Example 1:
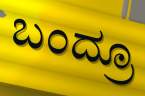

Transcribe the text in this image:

ಬಂದ್ರೂ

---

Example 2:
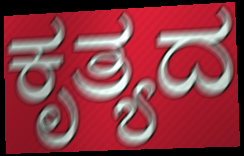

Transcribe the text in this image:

ಕೃತ್ಯದ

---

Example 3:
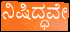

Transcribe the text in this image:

ನಿಷಿದ್ಧವೇ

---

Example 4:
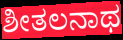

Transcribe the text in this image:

ಶೀತಲನಾಥ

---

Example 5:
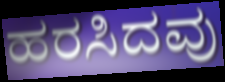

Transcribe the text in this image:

ಹರಸಿದವು